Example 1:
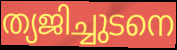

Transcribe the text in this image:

ത്യജിച്ചുടനെ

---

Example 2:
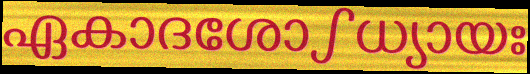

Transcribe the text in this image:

ഏകാദശോഽധ്യായഃ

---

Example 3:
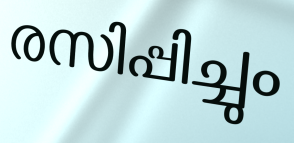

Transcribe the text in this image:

രസിപ്പിച്ചും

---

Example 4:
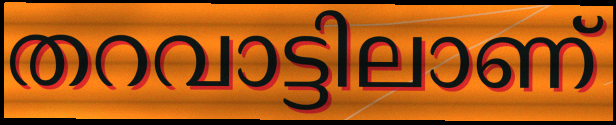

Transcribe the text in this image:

തറവാട്ടിലാണ്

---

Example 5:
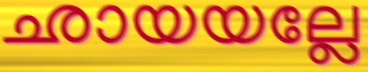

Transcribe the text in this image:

ഛായയല്ലേ